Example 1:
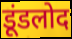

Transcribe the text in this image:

डूंडलोद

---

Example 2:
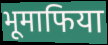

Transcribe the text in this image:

भूमाफिया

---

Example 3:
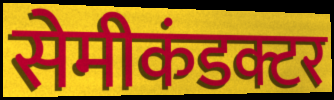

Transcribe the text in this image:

सेमीकंडक्टर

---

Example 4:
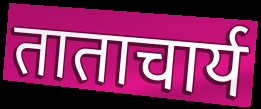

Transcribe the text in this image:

ताताचार्य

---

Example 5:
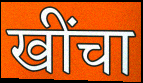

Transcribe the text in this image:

खींचा